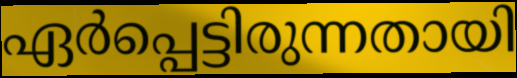
ഏർപ്പെട്ടിരുന്നതായി